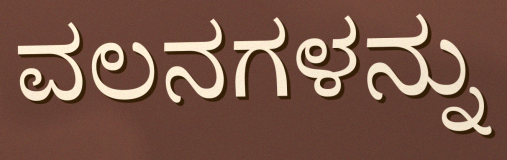
ವಲನಗಳನ್ನು